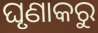
ଘୃଣାକରୁ